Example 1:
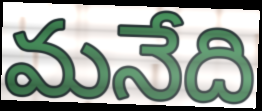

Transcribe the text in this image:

మనేది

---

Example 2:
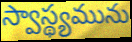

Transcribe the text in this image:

స్వాస్థ్యమును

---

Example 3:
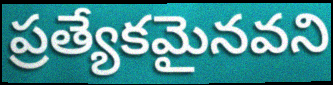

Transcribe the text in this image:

ప్రత్యేకమైనవని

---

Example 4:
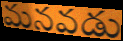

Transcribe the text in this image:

మనవడు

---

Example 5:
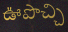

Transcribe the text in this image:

ఊపొచ్చి